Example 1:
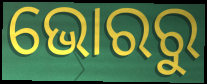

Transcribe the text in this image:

ଭୋରରୁ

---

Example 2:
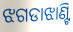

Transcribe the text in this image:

ଝଗଡାଝାଣ୍ଟି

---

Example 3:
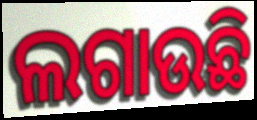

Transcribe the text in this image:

ଲଗାଉଛି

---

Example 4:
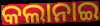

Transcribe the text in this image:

କଲାନାଇ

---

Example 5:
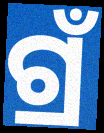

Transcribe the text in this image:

ଗ୍ରଁ